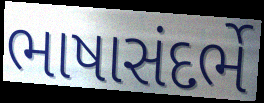
ભાષાસંદર્ભે